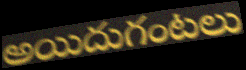
అయిదుగంటలు